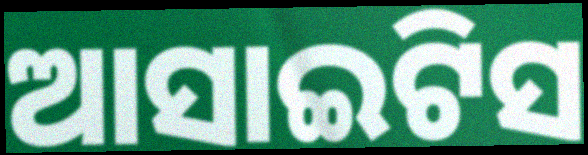
ଆସାଇଟିସ